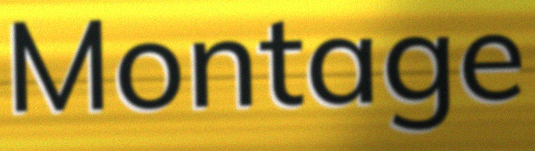
Montage